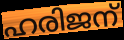
ഹരിജന്